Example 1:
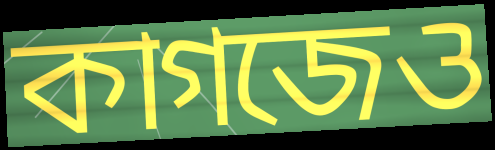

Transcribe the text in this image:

কাগজেও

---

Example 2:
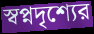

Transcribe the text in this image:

স্বপ্নদৃশ্যের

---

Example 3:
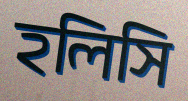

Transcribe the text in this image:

হলিসি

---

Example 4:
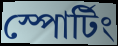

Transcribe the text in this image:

স্পোর্টিং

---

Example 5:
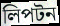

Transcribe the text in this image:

লিপটন